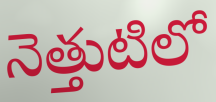
నెత్తుటిలో